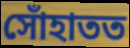
সোঁহাতত